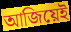
আজিয়েই